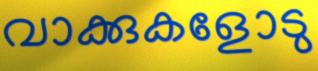
വാക്കുകളോടു